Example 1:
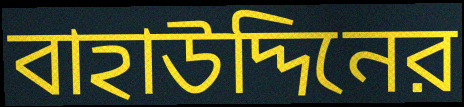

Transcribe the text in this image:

বাহাউদ্দিনের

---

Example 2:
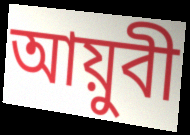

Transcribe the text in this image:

আয়ুবী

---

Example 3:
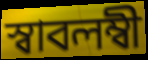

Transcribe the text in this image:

স্বাবলম্বী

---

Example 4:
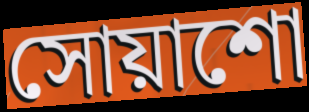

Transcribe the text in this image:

সোয়াশো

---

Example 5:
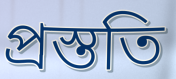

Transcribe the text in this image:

প্রস্ততি